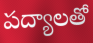
పద్యాలతో